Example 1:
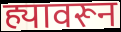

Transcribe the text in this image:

ह्यावरून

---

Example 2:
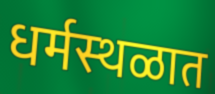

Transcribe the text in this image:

धर्मस्थळात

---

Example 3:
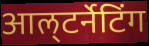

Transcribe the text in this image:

आल्टर्नेटिंग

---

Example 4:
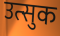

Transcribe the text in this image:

उत्सुक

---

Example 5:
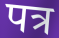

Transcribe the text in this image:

पत्र